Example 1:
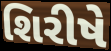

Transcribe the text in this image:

શિરીષે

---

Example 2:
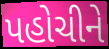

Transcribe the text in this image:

પહોચીને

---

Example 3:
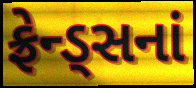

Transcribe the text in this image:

ફ્રેન્ડ્સનાં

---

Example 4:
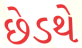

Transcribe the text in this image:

છેડથે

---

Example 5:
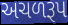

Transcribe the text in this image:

અચળરૂપ